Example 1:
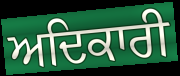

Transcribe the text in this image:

ਅਦਿਕਾਰੀ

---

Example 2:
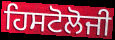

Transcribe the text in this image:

ਹਿਸਟੋਲੋਜੀ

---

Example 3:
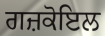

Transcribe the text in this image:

ਗਜ਼ਕੋਇਲ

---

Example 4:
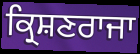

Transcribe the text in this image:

ਕ੍ਰਿਸ਼ਣਰਾਜਾ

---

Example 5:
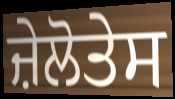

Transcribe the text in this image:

ਜ਼ੇਲੋਤੇਸ